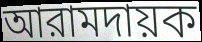
আরামদায়ক